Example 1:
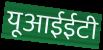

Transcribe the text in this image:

यूआईईटी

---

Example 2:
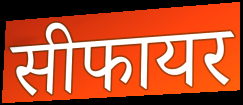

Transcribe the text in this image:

सीफायर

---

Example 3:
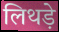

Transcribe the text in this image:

लिथड़े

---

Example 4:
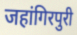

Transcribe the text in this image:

जहांगिरपुरी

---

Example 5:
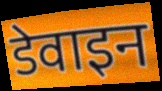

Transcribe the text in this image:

डेवाइन